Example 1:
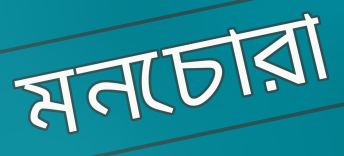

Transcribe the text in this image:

মনচোরা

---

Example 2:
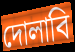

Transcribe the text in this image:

দোলাবি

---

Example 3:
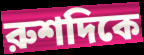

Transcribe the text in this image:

রুশদিকে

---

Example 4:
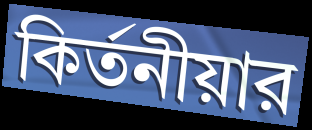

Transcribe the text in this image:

কির্তনীয়ার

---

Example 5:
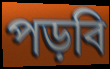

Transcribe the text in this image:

পড়বি